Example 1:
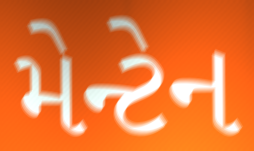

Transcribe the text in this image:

મેન્ટેન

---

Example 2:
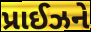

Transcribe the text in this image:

પ્રાઈઝને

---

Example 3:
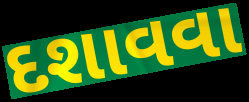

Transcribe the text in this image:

દશાવવા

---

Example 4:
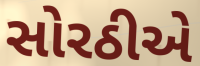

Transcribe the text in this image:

સોરઠીએ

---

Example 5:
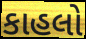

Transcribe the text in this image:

કાહલો